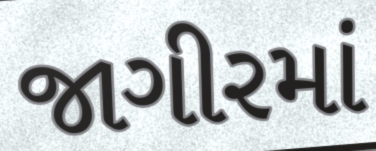
જાગીરમાં